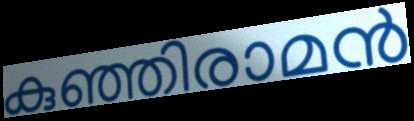
കുഞ്ഞിരാമൻ